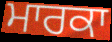
ਮਾਰਕਾ